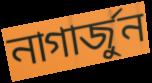
নাগাৰ্জুন